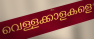
വെള്ളക്കാളകളെ